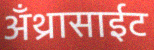
अँथ्रासाईट